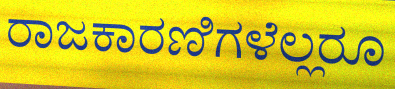
ರಾಜಕಾರಣಿಗಳೆಲ್ಲರೂ